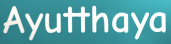
Ayutthaya